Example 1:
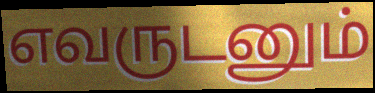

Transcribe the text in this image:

எவருடனும்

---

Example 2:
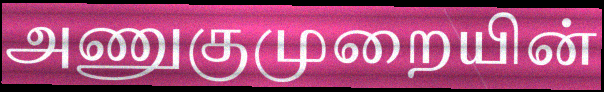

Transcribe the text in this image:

அணுகுமுறையின்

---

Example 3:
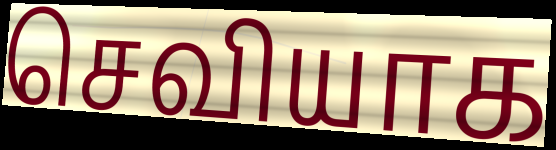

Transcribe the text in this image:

செவியாக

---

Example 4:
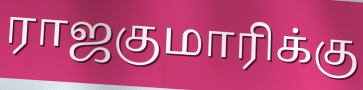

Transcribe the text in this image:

ராஜகுமாரிக்கு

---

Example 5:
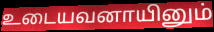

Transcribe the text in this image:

உடையவனாயினும்